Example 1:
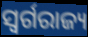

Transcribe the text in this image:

ସ୍ୱର୍ଗରାଜ୍ୟ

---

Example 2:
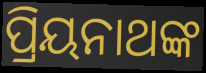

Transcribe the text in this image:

ପ୍ରିୟନାଥଙ୍କ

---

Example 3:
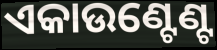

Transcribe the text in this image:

ଏକାଉଣ୍ଟେଣ୍ଟ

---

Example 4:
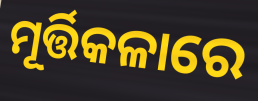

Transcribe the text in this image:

ମୂର୍ତ୍ତିକଳାରେ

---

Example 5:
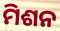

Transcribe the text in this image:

ମିଶନ